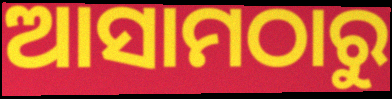
ଆସାମଠାରୁ